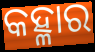
କହ୍ଳାର